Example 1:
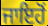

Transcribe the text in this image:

ਜਾਇਹੋਂ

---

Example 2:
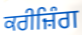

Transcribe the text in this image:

ਕਰੀਜ਼ਿੰਗ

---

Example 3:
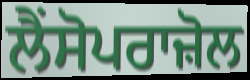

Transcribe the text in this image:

ਲੈਂਸੋਪਰਾਜ਼ੋਲ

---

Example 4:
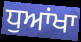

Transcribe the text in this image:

ਧੁਆਂਖਾ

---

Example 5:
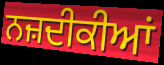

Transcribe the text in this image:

ਨਜ਼ਦੀਕੀਆਂ